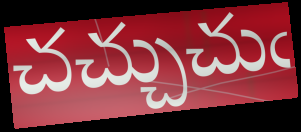
చచ్చుచుఁ